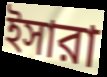
ইসারা